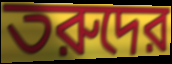
তরুদের